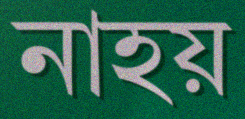
নাহয়